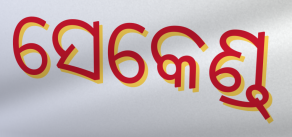
ସେକେଣ୍ଡ୍